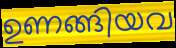
ഉണങ്ങിയവ